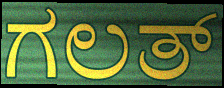
ಗಲತ್